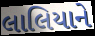
લાલિયાને